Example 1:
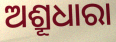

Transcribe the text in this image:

ଅଶ୍ରୂଧାରା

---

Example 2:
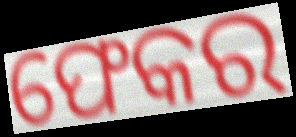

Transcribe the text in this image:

ଫେକର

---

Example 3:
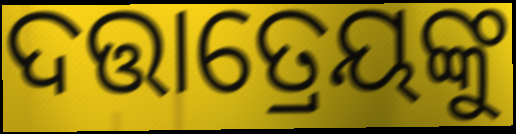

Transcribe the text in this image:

ଦତ୍ତାତ୍ରେୟଙ୍କୁ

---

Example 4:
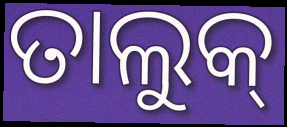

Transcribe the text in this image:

ତାଲୁକ୍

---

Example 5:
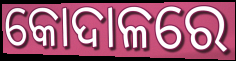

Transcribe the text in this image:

କୋଦାଳରେ